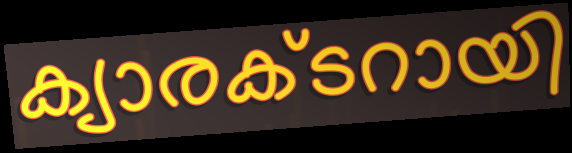
ക്യാരക്ടറായി